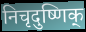
निचृदुष्णिक्